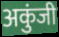
अकुंजी